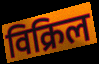
विक्रिल